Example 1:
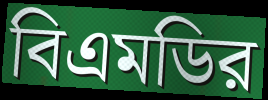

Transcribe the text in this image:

বিএমডির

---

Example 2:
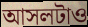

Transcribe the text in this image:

আসলটাও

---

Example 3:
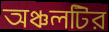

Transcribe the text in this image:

অঞ্চলটির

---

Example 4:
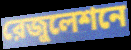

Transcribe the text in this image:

রেজুলেশনে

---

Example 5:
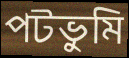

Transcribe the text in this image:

পটভুমি